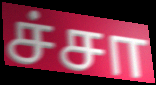
ச்சா